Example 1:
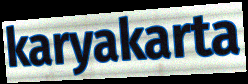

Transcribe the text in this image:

karyakarta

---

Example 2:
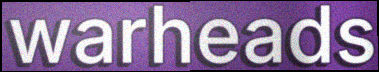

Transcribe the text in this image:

warheads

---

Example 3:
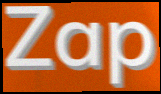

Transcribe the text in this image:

Zap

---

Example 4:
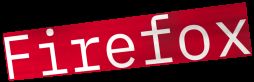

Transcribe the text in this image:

Firefox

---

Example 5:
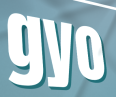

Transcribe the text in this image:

gyo